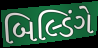
બિલ્ડિંગે